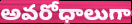
అవరోధాలుగా